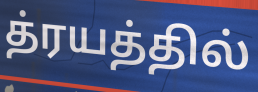
த்ரயத்தில்